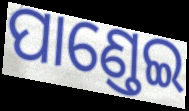
ପାଣ୍ଡେଇ